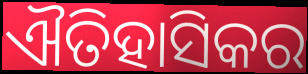
ଐତିହାସିକର